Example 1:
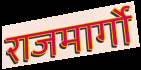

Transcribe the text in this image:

राजमार्गो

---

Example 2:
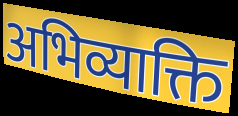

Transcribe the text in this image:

अभिव्याक्ति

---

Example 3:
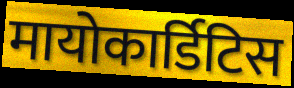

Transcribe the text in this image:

मायोकार्डिटिस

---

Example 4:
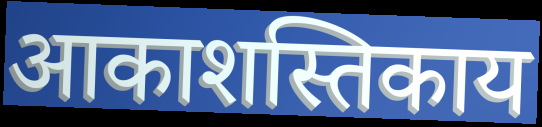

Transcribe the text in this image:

आकाशस्तिकाय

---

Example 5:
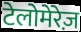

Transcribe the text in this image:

टेलोमेरेज़